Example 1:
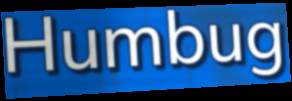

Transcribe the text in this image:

Humbug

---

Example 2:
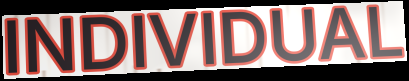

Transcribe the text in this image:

INDIVIDUAL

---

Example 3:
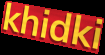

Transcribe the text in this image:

khidki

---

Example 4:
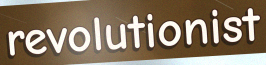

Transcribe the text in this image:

revolutionist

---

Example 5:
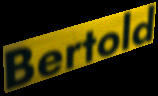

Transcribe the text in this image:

Bertold